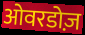
ओवरडोज़